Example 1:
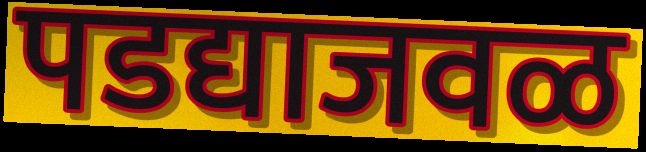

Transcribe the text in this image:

पडद्याजवळ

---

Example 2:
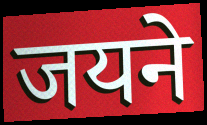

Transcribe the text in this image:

जयने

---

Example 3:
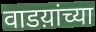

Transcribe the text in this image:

वाडय़ांच्या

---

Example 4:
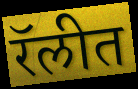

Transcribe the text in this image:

रॅलीत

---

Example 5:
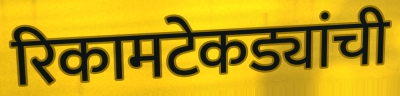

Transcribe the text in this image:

रिकामटेकड्यांची